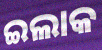
ଇଲାକ